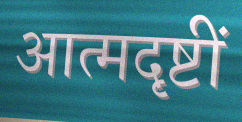
आत्मदृष्टीं